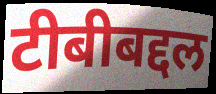
टीबीबद्दल